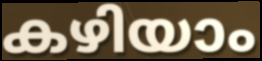
കഴിയാം